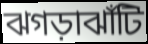
ঝগড়াঝাঁটি